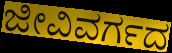
ಜೀವಿವರ್ಗದ